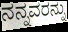
ನನ್ನವರನ್ನು